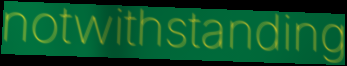
notwithstanding